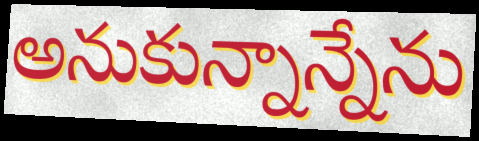
అనుకున్నాన్నేను